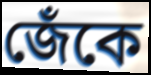
জেঁকে